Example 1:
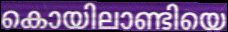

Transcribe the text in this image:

കൊയിലാണ്ടിയെ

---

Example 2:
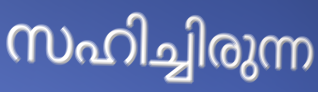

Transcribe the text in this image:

സഹിച്ചിരുന്ന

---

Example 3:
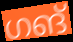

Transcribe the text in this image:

ഗങ്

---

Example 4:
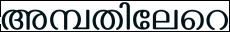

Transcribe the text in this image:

അമ്പതിലേറെ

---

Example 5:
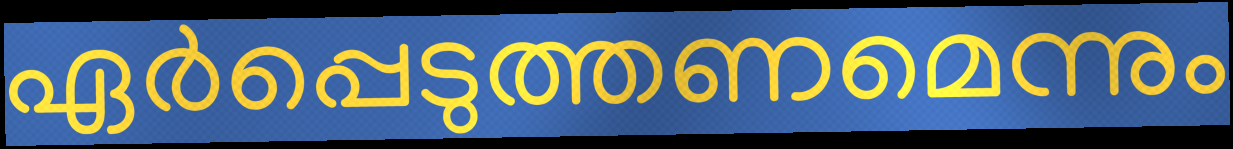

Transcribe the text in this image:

ഏർപ്പെടുത്തണമെന്നും